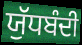
ਯੁੱਧਬੰਦੀ